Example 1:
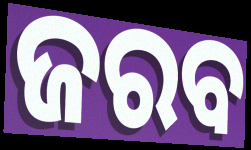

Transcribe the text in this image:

ଜରବ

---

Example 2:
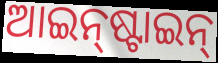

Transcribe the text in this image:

ଆଇନ୍‌ଷ୍ଟାଇନ୍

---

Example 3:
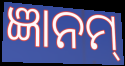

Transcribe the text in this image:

ଜ୍ଞାନମ୍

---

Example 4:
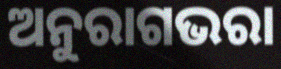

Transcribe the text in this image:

ଅନୁରାଗଭରା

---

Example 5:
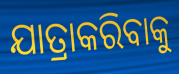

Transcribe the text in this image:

ଯାତ୍ରାକରିବାକୁ